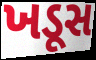
ખડૂસ